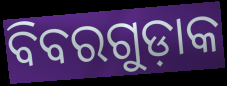
ବିବରଗୁଡ଼ାକ